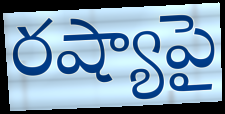
రష్యాపై